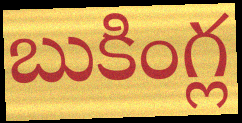
బుకింగ్ల